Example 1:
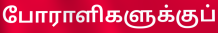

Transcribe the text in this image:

போராளிகளுக்குப்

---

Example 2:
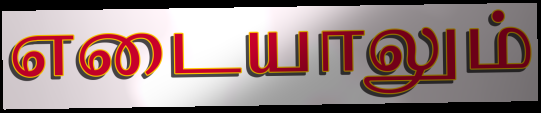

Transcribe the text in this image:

எடையாலும்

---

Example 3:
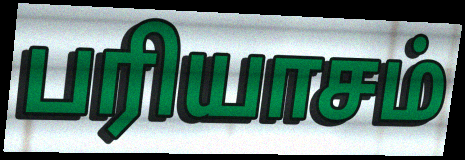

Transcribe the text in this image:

பரியாசம்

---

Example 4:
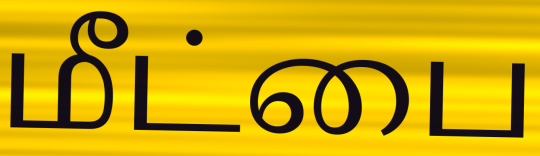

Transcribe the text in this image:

மீட்பை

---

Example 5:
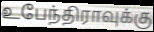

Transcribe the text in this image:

உபேந்திராவுக்கு